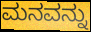
ಮನವನ್ನು